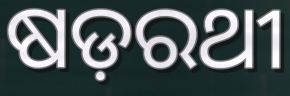
ଷଡ଼ରଥୀ